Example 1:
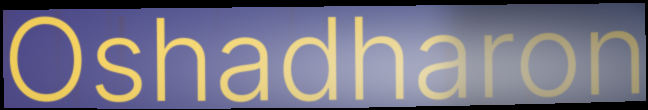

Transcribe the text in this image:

Oshadharon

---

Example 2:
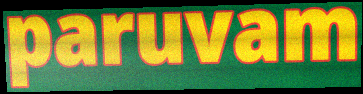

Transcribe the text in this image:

paruvam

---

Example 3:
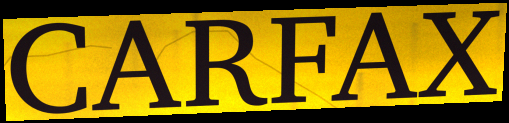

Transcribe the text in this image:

CARFAX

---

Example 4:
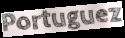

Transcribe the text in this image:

Portuguez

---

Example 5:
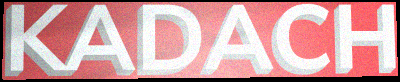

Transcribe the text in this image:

KADACH